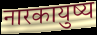
नारकायुष्य